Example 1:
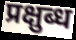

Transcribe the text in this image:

प्रक्षुब्ध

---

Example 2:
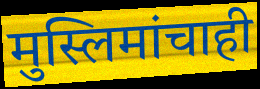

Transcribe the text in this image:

मुस्लिमांचाही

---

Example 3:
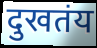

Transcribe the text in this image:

दुखतंय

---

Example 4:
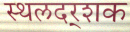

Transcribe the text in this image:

स्थलदर्शक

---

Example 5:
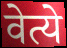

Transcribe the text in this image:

वेत्ये